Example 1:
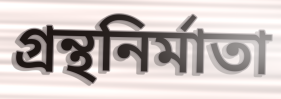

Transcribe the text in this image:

গ্রন্থনির্মাতা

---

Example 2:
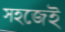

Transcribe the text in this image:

সহজেই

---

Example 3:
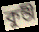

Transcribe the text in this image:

কুন্তী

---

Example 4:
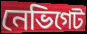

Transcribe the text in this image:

নেভিগেট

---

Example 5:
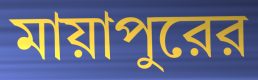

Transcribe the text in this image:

মায়াপুরের